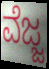
ವೆಜ್ಜ